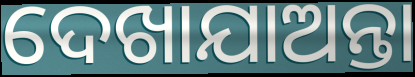
ଦେଖାଯାଅନ୍ତା